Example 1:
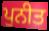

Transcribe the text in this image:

ਪੁਨੀਤ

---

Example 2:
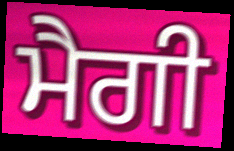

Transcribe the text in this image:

ਮੈਗੀ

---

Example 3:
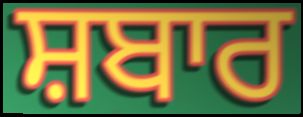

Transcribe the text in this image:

ਸ਼ਬਾਰ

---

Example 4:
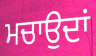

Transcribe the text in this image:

ਮਚਾਉਦਾਂ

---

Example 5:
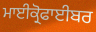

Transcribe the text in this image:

ਮਾਈਕ੍ਰੋਫਾਈਬਰ